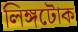
লিঙ্গটোক